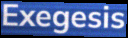
Exegesis